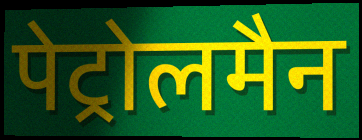
पेट्रोलमैन